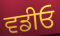
ਵਡੀਓ